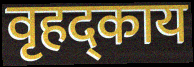
वृहद्काय